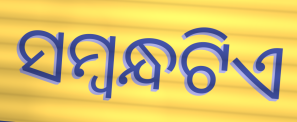
ସମ୍ବନ୍ଧଟିଏ